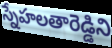
స్నేహలతారెడ్డిని